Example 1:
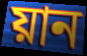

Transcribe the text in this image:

য়ান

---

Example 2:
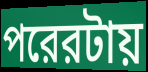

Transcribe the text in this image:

পরেরটায়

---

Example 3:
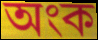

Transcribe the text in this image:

অংক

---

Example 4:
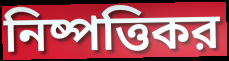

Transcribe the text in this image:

নিষ্পত্তিকর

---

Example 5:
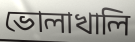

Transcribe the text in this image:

ভোলাখালি